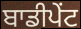
ਬਾਡੀਪੇਂਟ